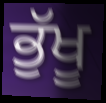
ਭੁੱਖੂ